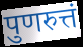
पुणरुत्तं